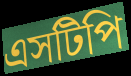
এসটিপি